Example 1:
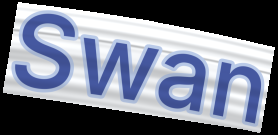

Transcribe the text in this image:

Swan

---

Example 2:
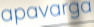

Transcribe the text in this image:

apavarga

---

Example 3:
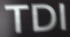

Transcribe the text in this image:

TDI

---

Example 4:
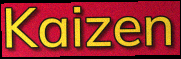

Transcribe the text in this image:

Kaizen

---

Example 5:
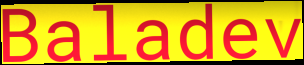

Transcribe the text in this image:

Baladev